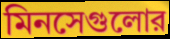
মিনসেগুলোর